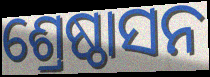
ଶ୍ରେଷ୍ଠାସନ